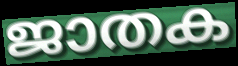
ജാതക